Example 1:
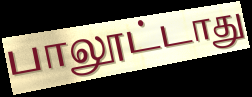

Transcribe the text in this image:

பாலூட்டாது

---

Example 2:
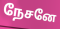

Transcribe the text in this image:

நேசனே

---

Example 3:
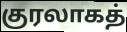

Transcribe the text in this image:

குரலாகத்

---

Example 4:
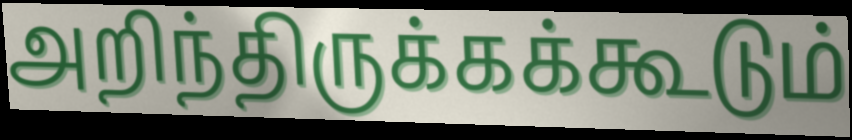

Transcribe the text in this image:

அறிந்திருக்கக்கூடும்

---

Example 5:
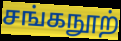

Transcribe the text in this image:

சங்கநூற்